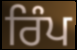
ਰਿੰਪ